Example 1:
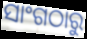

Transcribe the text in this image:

ସାଂଗଠାରୁ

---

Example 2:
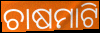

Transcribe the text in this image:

ଚାଷମାଟି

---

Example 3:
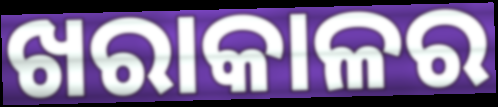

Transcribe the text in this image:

ଖରାକାଳର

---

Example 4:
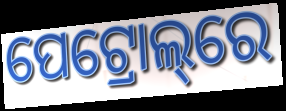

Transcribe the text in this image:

ପେଟ୍ରୋଲ୍‌ରେ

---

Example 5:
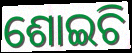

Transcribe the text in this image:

ଶୋଇଚି